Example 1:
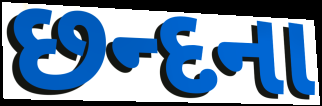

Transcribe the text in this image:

છન્દના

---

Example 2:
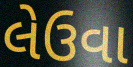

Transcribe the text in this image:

લેઉવા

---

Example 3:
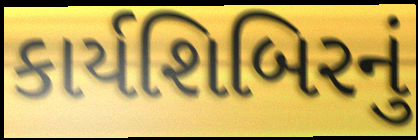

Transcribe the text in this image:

કાર્યશિબિરનું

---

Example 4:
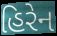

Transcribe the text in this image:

હિરેન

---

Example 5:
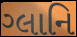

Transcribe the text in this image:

ગ્લાનિ